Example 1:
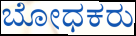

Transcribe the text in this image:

ಬೋಧಕರು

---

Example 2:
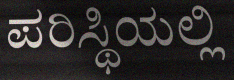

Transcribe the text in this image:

ಪರಿಸ್ಥಿಯಲ್ಲಿ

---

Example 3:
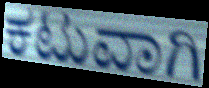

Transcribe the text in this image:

ಕಟುವಾಗಿ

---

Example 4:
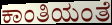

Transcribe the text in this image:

ಕಾಂತಿಯಂತೆ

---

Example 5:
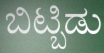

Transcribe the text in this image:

ಬಿಟ್ಬಿಡು